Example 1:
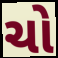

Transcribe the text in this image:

ચો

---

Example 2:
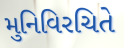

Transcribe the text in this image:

મુનિવિરચિતે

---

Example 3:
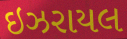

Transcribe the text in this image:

ઇઝરાયલ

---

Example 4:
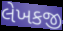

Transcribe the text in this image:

લેખકજી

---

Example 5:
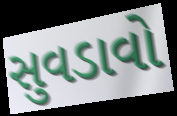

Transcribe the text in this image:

સુવડાવો